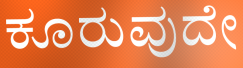
ಕೂರುವುದೇ